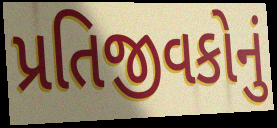
પ્રતિજીવકોનું